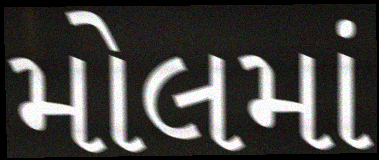
મોલમાં